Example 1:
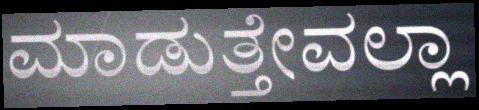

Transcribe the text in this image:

ಮಾಡುತ್ತೇವಲ್ಲಾ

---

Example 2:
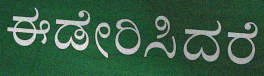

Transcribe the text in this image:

ಈಡೇರಿಸಿದರೆ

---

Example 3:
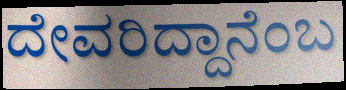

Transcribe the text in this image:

ದೇವರಿದ್ದಾನೆಂಬ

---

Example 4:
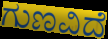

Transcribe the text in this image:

ಗುಣವಿದೆ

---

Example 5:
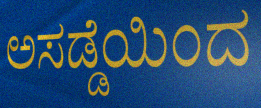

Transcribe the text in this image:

ಅಸಡ್ಡೆಯಿಂದ